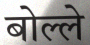
बोल्ले